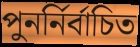
পুনর্নির্বাচিত